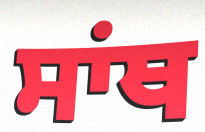
ਸਾਂਥ